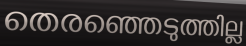
തെരഞ്ഞെടുത്തില്ല